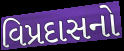
વિપ્રદાસનો